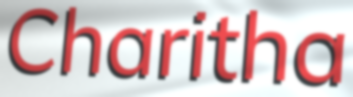
Charitha